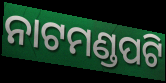
ନାଟମଣ୍ଡପଟି